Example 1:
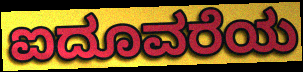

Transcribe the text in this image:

ಐದೂವರೆಯ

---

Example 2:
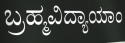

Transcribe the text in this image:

ಬ್ರಹ್ಮವಿದ್ಯಾಯಾಂ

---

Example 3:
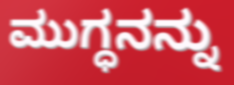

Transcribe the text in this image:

ಮುಗ್ಧನನ್ನು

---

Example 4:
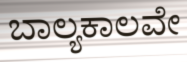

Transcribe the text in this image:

ಬಾಲ್ಯಕಾಲವೇ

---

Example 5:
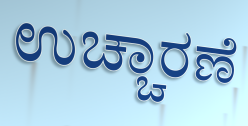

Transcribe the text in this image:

ಉಚ್ಚಾರಣೆ